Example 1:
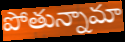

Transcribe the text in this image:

పోతున్నామా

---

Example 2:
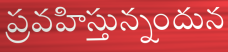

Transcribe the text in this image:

ప్రవహిస్తున్నందున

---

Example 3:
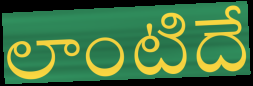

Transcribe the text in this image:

లాంటిదే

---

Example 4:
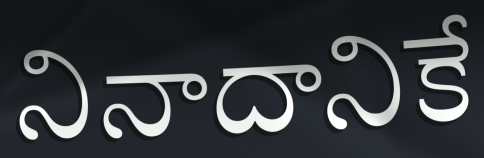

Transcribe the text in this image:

నినాదానికే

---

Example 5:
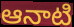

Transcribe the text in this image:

ఆనాటి